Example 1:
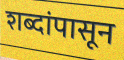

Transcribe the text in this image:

शब्दांपासून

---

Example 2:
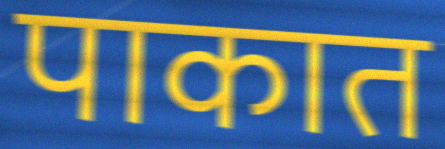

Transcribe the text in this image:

पाकात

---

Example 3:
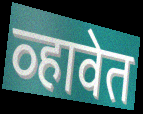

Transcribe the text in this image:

व्हावेत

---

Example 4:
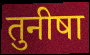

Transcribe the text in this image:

तुनीषा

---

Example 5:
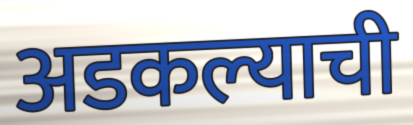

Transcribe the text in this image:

अडकल्याची